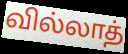
வில்லாத்